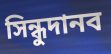
সিন্ধুদানব